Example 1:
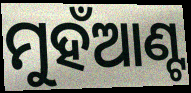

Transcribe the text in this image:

ମୁହଁଆଣ୍ଟ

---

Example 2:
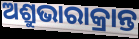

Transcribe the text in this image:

ଅଶ୍ରୁଭାରାକ୍ରାନ୍ତ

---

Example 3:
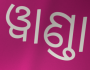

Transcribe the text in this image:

ୱାଣ୍ଡା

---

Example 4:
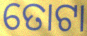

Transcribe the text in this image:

ତୋଟା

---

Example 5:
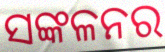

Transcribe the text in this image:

ସଙ୍କଳନର